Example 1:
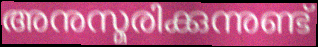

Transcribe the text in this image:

അനുസ്മരിക്കുന്നുണ്ട്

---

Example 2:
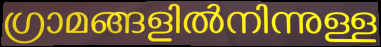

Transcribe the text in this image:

ഗ്രാമങ്ങളിൽനിന്നുള്ള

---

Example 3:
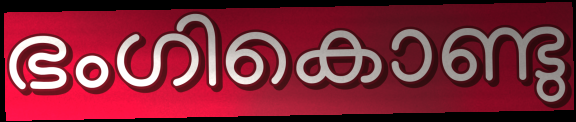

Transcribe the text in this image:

ഭംഗികൊണ്ടു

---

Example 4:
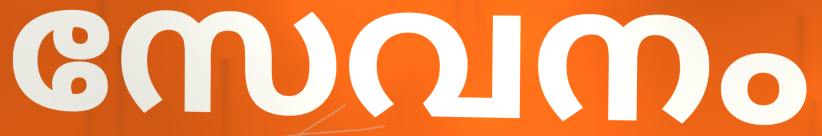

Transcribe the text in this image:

സേവനം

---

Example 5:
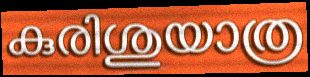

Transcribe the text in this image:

കുരിശുയാത്ര